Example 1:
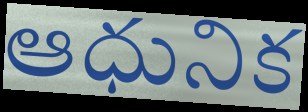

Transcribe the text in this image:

ఆధునిక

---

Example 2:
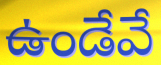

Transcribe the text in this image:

ఉండేవే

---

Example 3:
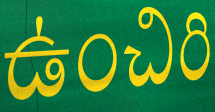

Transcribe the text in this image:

ఉంచిరి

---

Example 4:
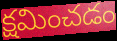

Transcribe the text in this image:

క్షమించడం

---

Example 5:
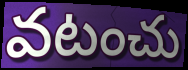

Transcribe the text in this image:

వటంచు